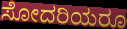
ಸೋದರಿಯರೂ